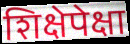
शिक्षेपेक्षा